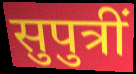
सुपुत्रीं